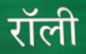
रॉली